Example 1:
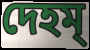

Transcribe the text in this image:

দেহম্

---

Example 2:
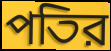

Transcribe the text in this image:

পতির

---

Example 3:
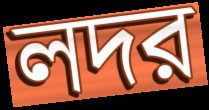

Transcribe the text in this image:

লদর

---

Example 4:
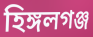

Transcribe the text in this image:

হিঙ্গলগঞ্জ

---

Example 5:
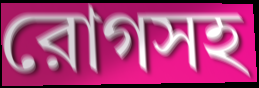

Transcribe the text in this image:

রোগসহ